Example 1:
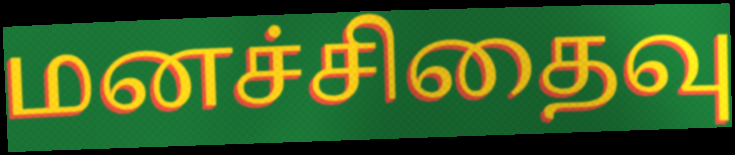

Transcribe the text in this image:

மனச்சிதைவு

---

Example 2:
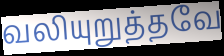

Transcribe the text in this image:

வலியுறுத்தவே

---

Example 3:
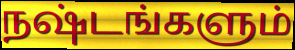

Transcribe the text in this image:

நஷ்டங்களும்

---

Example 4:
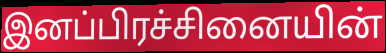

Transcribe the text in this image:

இனப்பிரச்சினையின்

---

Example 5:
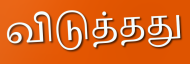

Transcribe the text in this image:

விடுத்தது